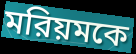
মরিয়মকে